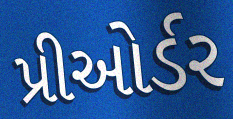
પ્રીઓર્ડર